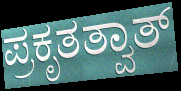
ಪ್ರಕೃತತ್ವಾತ್